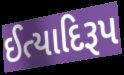
ઈત્યાદિરૂપ